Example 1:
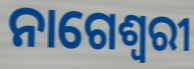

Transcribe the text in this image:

ନାଗେଶ୍ୱରୀ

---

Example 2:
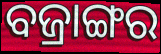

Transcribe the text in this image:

ବଜ୍ରାଙ୍ଗର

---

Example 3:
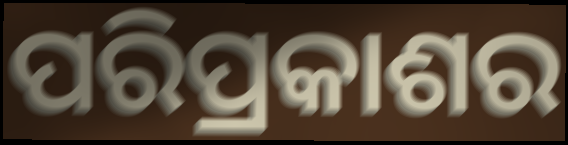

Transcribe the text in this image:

ପରିପ୍ରକାଶର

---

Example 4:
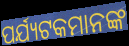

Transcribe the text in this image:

ପର୍ଯ୍ୟଟକମାନଙ୍କ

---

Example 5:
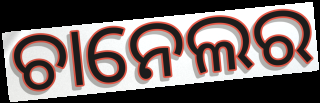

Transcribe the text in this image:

ଚାନେଲର